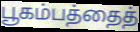
பூகம்பத்தைத்